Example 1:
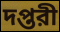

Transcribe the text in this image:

দপ্তরী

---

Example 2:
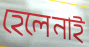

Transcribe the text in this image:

হেলেনাই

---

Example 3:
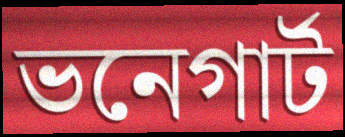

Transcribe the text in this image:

ভনেগার্ট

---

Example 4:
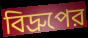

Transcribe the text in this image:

বিদ্রুপের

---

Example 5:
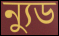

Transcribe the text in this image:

ন্যুড